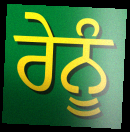
ਰੇਨੂੰ